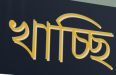
খাচ্ছি